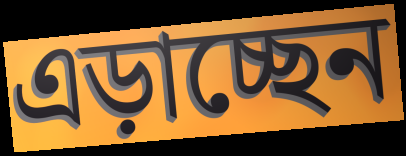
এড়াচ্ছেন